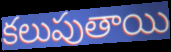
కలుపుతాయి